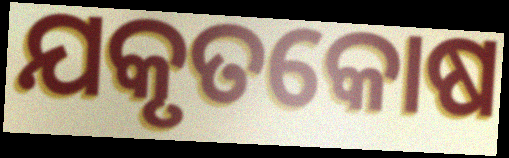
ଯକୃତକୋଷ